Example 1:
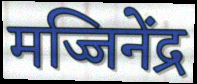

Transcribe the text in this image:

मज्जिनेंद्र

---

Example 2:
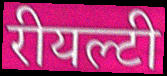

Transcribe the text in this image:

रीयल्टी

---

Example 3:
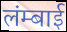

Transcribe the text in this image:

लंम्बाई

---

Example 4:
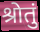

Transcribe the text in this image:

श्रोतुं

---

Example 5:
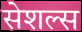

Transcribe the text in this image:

सेशल्स